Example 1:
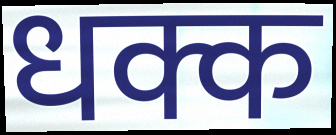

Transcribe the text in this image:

धक्क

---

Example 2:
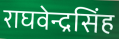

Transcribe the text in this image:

राघवेन्द्रसिंह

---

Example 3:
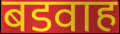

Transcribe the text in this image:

बडवाह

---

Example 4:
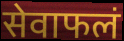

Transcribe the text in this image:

सेवाफलं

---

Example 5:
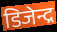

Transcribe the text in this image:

डिजेन्द्र